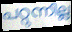
പറ്റുന്നില്ല